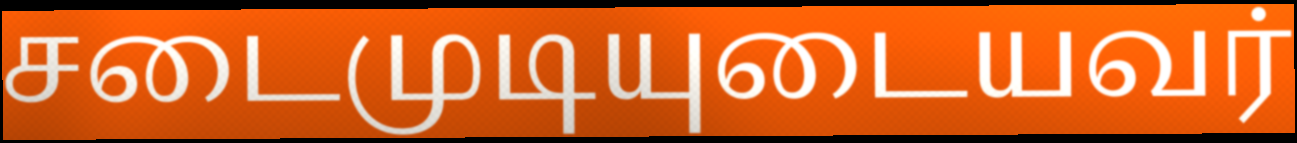
சடைமுடியுடையவர்